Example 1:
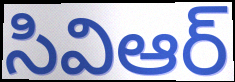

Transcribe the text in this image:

సివిఆర్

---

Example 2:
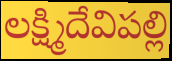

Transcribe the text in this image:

లక్ష్మిదేవిపల్లి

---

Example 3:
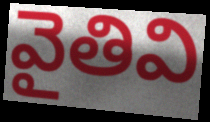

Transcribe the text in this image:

వైతివి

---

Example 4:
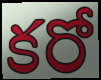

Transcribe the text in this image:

కరో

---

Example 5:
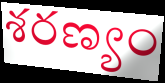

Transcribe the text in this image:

శరణ్యం